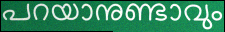
പറയാനുണ്ടാവും